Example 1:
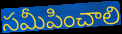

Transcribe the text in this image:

సమీపించాలి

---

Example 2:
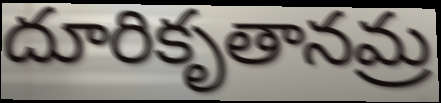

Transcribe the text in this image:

దూరికృతానమ్ర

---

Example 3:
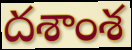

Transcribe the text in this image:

దశాంశ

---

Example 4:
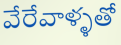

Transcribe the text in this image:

వేరేవాళ్ళతో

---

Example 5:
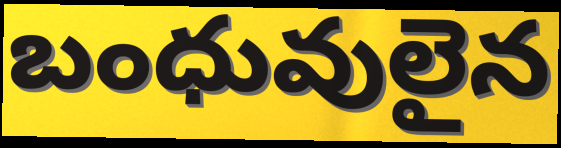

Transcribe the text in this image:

బంధువులైన